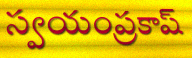
స్వయంప్రకాష్